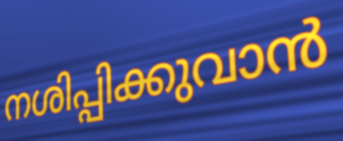
നശിപ്പിക്കുവാൻ